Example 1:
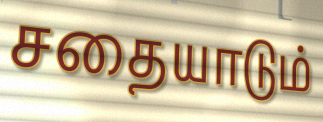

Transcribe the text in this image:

சதையாடும்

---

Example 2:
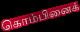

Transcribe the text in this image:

கொம்பினைக்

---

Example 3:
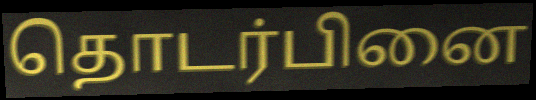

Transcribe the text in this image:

தொடர்பினை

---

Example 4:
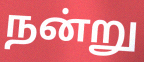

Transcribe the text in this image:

நன்று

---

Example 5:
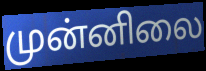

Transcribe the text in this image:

முன்னிலை